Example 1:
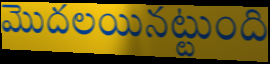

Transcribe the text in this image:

మొదలయినట్టుంది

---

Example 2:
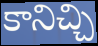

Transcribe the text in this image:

కానిచ్చి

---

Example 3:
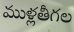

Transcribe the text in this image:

ముళ్లతీగల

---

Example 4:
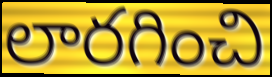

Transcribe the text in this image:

లారగించి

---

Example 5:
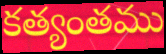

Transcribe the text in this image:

కత్యంతము